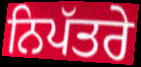
ਨਿਪੱਤਰੇ